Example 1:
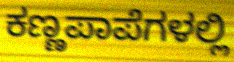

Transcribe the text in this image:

ಕಣ್ಣಪಾಪೆಗಳಲ್ಲಿ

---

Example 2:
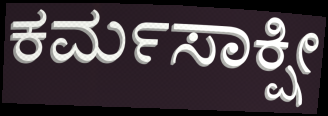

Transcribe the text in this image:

ಕರ್ಮಸಾಕ್ಷೀ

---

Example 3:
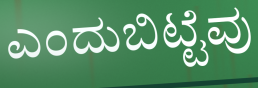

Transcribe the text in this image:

ಎಂದುಬಿಟ್ಟೆವು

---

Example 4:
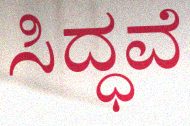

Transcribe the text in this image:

ಸಿದ್ಧವೆ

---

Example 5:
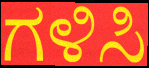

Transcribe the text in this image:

ಗಳಿಸಿ